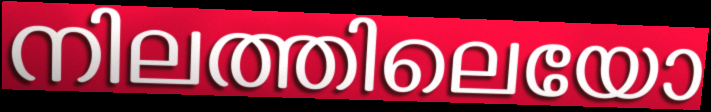
നിലത്തിലെയോ